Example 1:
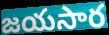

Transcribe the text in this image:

జయసార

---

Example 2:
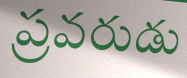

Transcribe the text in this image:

ప్రవరుడు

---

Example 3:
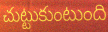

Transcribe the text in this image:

చుట్టుకుంటుంది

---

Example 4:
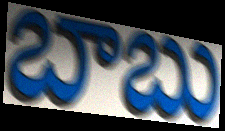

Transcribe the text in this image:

బాబు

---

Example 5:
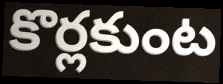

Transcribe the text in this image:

కొర్లకుంట